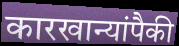
कारखान्यांपैकी